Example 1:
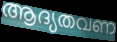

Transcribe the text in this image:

ആദ്യതവണ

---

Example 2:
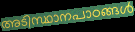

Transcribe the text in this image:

അടിസ്ഥാനപാഠങ്ങൾ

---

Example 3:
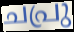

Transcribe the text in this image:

ചപ്രു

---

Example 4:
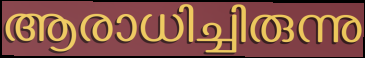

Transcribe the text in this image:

ആരാധിച്ചിരുന്നു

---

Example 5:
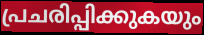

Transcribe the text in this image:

പ്രചരിപ്പിക്കുകയും